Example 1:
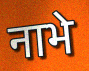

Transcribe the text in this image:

नाभे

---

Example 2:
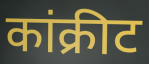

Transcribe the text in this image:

कांक्रीट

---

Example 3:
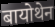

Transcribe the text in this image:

बायोथेन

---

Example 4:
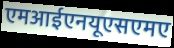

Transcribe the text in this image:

एमआईएनयूएसएमए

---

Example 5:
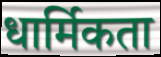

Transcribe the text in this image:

धार्मिकता